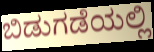
ಬಿಡುಗಡೆಯಲ್ಲಿ